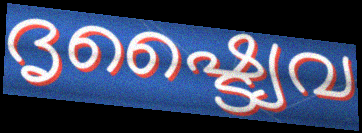
ദൃഷ്ട്യൈവ